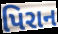
પિરાન